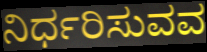
ನಿರ್ಧರಿಸುವವ